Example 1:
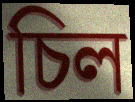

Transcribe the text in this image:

চিল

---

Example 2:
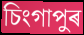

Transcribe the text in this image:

চিংগাপুৰ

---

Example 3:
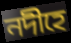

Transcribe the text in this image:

নদীহে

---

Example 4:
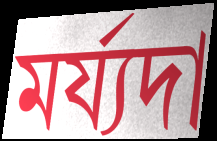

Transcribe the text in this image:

মৰ্য্যদা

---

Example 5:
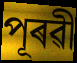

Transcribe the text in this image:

পূৰৱী